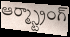
ఆర్మ్స్ట్రాంగ్